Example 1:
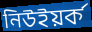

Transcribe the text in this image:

নিউইয়ৰ্ক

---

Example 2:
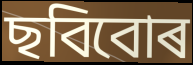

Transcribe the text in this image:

ছবিবোৰ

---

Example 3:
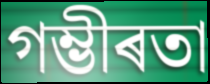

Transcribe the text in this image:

গম্ভীৰতা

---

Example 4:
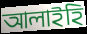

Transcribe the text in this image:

আলাইহি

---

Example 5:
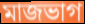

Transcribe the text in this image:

মাজভাগ